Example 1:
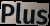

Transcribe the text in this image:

Plus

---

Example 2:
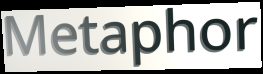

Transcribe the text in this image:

Metaphor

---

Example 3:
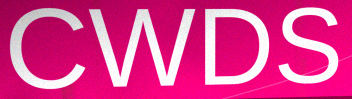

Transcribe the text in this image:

CWDS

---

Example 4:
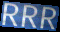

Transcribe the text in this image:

RRR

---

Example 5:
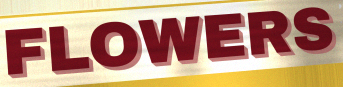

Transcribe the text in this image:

FLOWERS